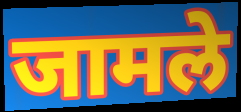
जामले